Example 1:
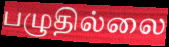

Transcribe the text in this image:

பழுதில்லை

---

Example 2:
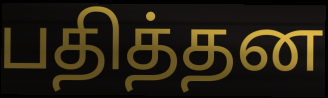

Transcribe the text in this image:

பதித்தன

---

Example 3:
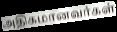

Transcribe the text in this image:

அதிகமானவர்கள்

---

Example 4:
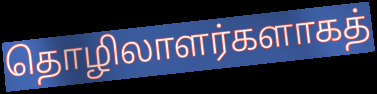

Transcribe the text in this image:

தொழிலாளர்களாகத்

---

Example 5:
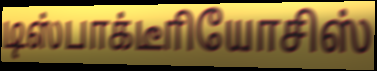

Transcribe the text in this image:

டிஸ்பாக்டீரியோசிஸ்